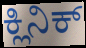
ಕ್ಲಿನಿಕ್